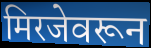
मिरजेवरून